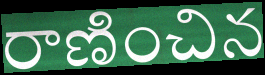
రాణించిన